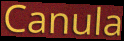
Canula